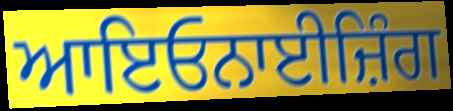
ਆਇਓਨਾਈਜ਼ਿੰਗ